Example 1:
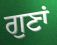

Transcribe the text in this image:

ਗੁਣਾਂ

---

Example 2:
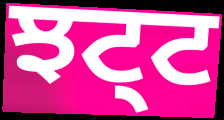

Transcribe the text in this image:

ਝਟ੍ਟ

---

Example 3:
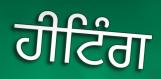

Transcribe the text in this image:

ਹੀਟਿੰਗ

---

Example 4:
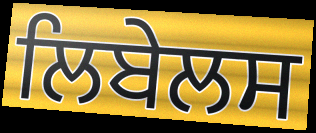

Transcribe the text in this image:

ਲਿਬੇਲਸ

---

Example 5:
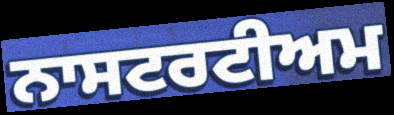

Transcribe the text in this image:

ਨਾਸਟਰਟੀਅਮ